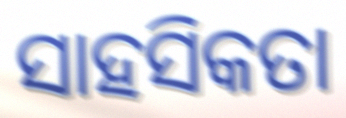
ସାହସିକତା